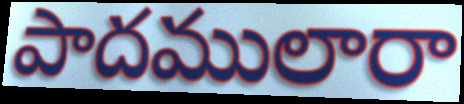
పాదములారా